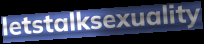
letstalksexuality